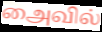
அைவில்